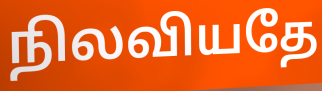
நிலவியதே